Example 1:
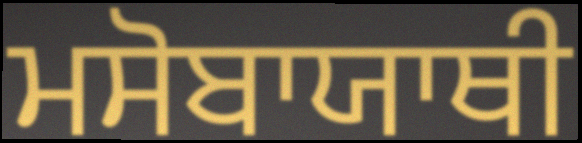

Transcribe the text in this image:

ਮਸੋਬਾਯਾਥੀ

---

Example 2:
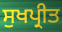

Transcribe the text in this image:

ਸੁਖਪ੍ਰੀਤ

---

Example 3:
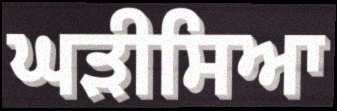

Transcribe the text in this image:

ਘੜੀਸਿਆ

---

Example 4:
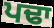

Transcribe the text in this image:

ਪਢਾ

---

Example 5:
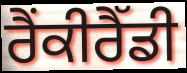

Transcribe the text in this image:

ਰੈਂਕੀਰੈੱਡੀ